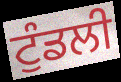
ਟੁੰਡਲੀ